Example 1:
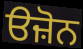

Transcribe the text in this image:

ੳਜ਼ੋਨ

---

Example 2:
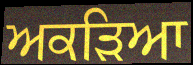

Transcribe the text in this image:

ਅਕੜਿਆ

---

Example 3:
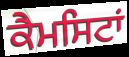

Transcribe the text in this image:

ਕੈਮਸਿਟਾਂ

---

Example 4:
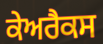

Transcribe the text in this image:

ਕੇਅਰੈਕਸ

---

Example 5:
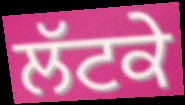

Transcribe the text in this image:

ਲੱਟਕੇ